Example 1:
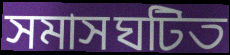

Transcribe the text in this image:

সমাসঘটিত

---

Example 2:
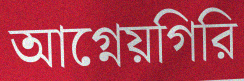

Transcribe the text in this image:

আগ্নেয়গিরি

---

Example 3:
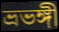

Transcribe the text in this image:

ভ্রভঙ্গী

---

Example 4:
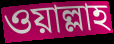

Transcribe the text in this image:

ওয়াল্লাহ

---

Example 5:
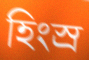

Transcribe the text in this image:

হিংস্র